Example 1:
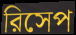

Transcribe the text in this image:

রিসেপ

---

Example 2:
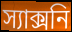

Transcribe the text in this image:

স্যাক্সনি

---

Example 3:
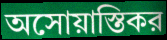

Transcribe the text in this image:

অসোয়াস্তিকর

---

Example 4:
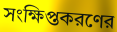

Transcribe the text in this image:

সংক্ষিপ্তকরণের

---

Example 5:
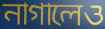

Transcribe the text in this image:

নাগালেও